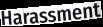
Harassment